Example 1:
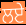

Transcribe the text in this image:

ਲਏ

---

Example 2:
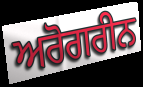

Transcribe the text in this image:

ਅਰੋਗਰੀਨ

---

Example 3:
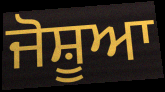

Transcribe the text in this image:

ਜੋਸ਼ੂਆ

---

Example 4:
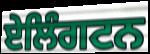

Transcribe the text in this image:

ਏਲਿੰਗਟਨ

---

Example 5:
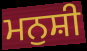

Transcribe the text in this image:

ਮਨੁਸ਼ੀ